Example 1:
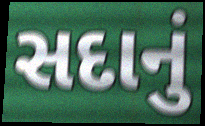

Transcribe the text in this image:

સદાનું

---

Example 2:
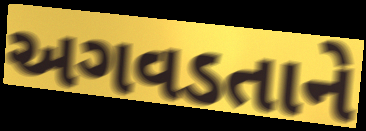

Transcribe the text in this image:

અગવડતાને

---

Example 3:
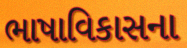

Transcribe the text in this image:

ભાષાવિકાસના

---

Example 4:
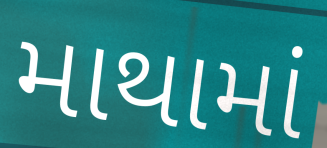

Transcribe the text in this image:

માથામાં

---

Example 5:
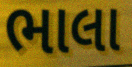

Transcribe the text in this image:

ભાલા